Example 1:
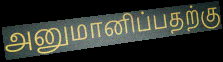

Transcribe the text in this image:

அனுமானிப்பதற்கு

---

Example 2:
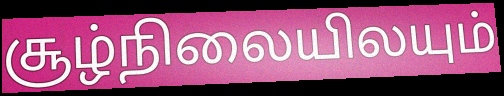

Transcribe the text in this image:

சூழ்நிலையிலயும்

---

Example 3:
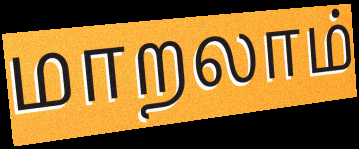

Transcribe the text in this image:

மாறலாம்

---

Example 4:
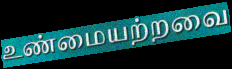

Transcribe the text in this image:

உண்மையற்றவை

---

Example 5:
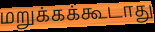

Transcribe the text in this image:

மறுக்கக்கூடாது